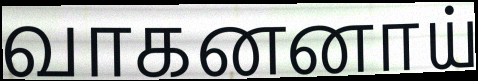
வாகனனாய்